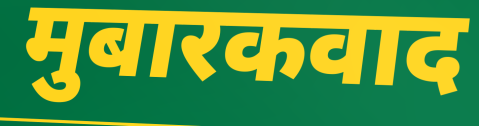
मुबारकवाद